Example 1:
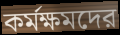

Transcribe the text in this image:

কর্মক্ষমদের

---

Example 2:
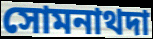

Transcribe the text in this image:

সোমনাথদা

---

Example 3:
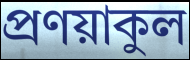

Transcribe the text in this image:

প্রণয়াকুল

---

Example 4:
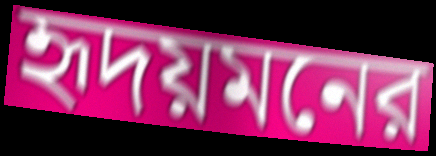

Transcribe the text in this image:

হৃদয়মনের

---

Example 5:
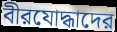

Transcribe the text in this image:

বীরযোদ্ধাদের